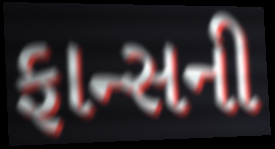
ફાન્સની